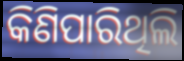
କିଣିପାରିଥିଲି